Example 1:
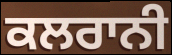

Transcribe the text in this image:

ਕਲਰਾਨੀ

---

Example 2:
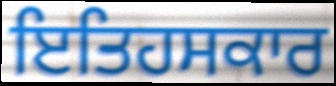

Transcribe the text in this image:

ਇਤਿਹਸਕਾਰ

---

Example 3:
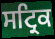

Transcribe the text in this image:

ਸਟ੍ਰਿਕ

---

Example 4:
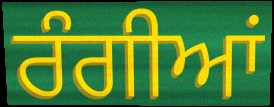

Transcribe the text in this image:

ਰੰਗੀਆਂ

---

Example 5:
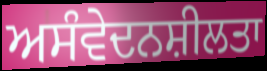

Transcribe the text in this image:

ਅਸੰਵੇਦਨਸ਼ੀਲਤਾ